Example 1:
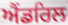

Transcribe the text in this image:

ਐਂਡਰਿਲ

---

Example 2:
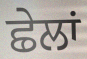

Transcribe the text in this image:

ਛੇਲਾਂ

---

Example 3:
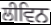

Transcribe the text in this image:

ਲੀਵਿਨ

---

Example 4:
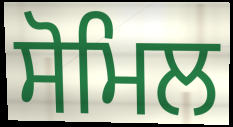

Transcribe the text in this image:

ਸੋਮਿਲ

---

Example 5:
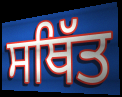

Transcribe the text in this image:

ਸਥਿੱਤ